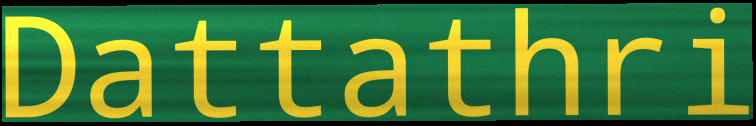
Dattathri